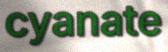
cyanate